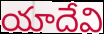
యాదేవి